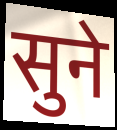
सुने